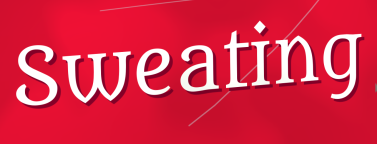
Sweating